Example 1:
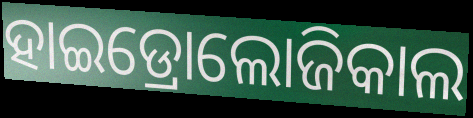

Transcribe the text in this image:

ହାଇଡ୍ରୋଲୋଜିକାଲ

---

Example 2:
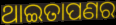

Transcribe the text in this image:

ଥାଇତାପଣର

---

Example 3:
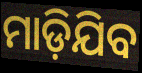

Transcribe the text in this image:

ମାଡ଼ିଯିବ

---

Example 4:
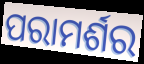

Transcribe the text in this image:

ପରାମର୍ଶର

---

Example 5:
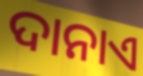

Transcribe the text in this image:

ଦାନାଏ